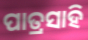
ପାତ୍ରସାହି